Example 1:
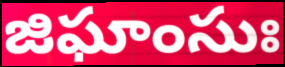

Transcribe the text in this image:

జిఘాంసుః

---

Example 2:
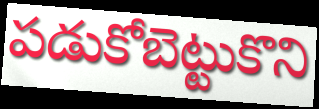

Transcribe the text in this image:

పడుకోబెట్టుకొని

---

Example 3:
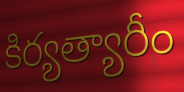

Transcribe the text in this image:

కిర్యత్యారీం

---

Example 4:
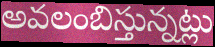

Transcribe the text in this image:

అవలంబిస్తున్నట్లు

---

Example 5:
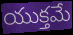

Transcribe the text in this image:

యుక్తమే